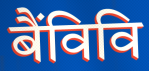
बैंविवि